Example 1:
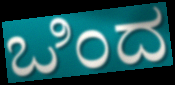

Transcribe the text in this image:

ಒಿಂದ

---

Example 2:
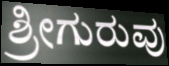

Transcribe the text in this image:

ಶ್ರೀಗುರುವು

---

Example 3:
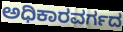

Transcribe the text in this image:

ಅಧಿಕಾರವರ್ಗದ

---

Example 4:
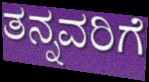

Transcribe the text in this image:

ತನ್ನವರಿಗೆ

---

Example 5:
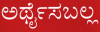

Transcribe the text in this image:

ಅರ್ಥೈಸಬಲ್ಲ